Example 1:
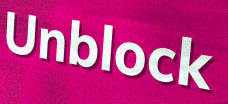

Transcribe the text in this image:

Unblock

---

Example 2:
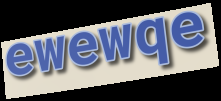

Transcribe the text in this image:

ewewqe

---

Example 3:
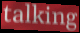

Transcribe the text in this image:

talking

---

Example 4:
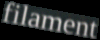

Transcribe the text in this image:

filament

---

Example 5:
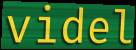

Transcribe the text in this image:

videl